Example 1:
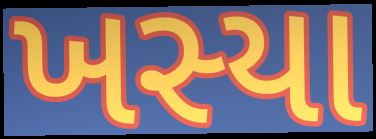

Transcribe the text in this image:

ખસ્યા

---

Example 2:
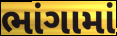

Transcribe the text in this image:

ભાંગામાં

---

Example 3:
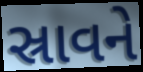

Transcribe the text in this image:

સ્રાવને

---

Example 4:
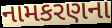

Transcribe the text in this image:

નામકરણના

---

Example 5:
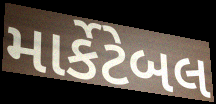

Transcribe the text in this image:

માર્કેટેબલ